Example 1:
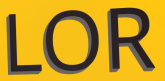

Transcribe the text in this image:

LOR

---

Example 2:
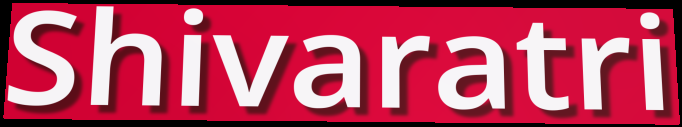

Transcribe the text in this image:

Shivaratri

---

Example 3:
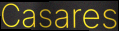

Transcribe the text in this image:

Casares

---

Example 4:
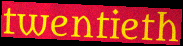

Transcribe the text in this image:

twentieth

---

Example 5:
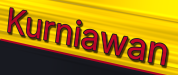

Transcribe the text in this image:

Kurniawan